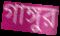
গাঙ্গুর